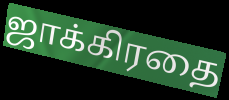
ஜாக்கிரதை